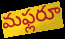
మఫ్లరూ